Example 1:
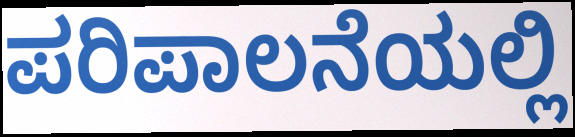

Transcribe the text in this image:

ಪರಿಪಾಲನೆಯಲ್ಲಿ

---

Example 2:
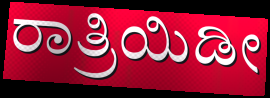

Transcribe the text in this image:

ರಾತ್ರಿಯಿಡೀ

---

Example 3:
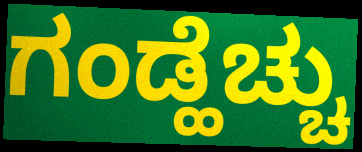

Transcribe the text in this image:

ಗಂಡ್ಹೆಚ್ಚು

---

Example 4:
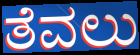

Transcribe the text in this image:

ತೆವಲು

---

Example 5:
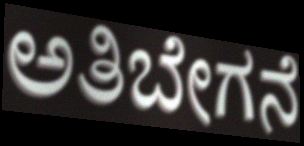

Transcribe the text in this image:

ಅತಿಬೇಗನೆ